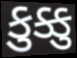
કુક્કુ